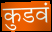
कुडवं